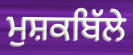
ਮੁਸ਼ਕਬਿੱਲੇ